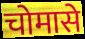
चोमासे